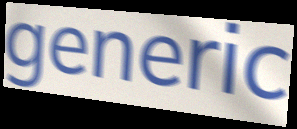
generic